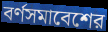
বর্ণসমাবেশের